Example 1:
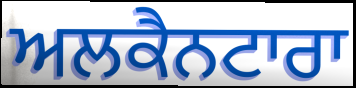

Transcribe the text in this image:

ਅਲਕੈਨਟਾਰਾ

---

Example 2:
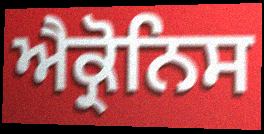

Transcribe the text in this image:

ਐਕ੍ਰੋਨਿਸ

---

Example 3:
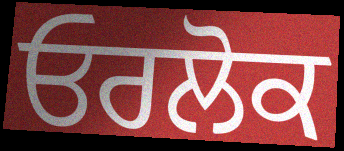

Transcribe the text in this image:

ਓਰਲੋਕ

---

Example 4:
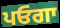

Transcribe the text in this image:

ਪਓਗਾ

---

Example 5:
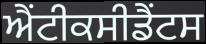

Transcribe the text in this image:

ਐਂਟੀਕਸੀਡੈਂਟਸ